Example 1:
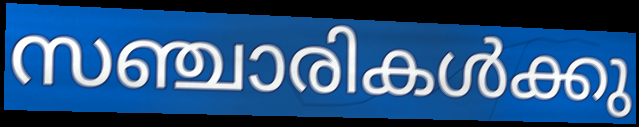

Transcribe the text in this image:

സഞ്ചാരികൾക്കു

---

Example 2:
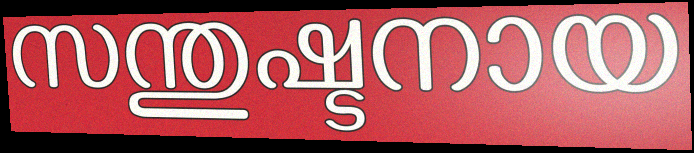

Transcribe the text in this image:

സന്തുഷ്ടനായ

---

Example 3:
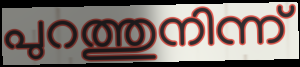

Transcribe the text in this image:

പുറത്തുനിന്ന്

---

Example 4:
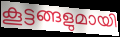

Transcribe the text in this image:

കൂട്ടങ്ങളുമായി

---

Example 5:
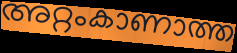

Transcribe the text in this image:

അറ്റംകാണാത്ത